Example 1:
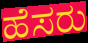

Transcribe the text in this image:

ಹೆಸರು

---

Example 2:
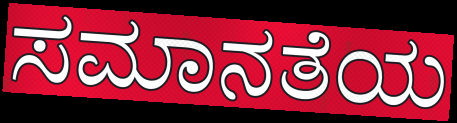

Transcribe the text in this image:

ಸಮಾನತೆಯ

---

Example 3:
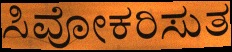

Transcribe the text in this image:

ಸಿವೋಕರಿಸುತ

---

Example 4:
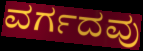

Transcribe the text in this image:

ವರ್ಗದವು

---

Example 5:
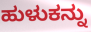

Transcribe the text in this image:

ಹುಳುಕನ್ನು